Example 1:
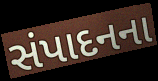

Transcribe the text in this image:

સંપાદનના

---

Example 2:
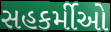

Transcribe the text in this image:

સહકર્મીઓ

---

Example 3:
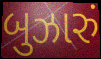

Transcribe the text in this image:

બુઝારું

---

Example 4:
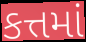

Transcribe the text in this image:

કત્તમાં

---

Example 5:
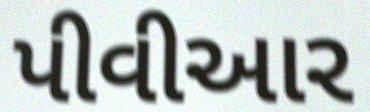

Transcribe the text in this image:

પીવીઆર